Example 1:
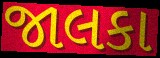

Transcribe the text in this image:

જાલકા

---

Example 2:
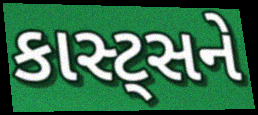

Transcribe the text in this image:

કાસ્ટ્સને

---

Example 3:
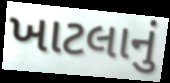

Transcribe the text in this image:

ખાટલાનું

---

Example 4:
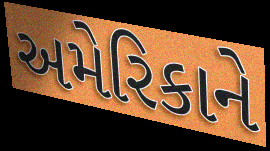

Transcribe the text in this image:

અમેરિકાને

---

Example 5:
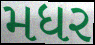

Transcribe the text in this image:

મધર